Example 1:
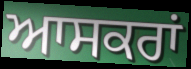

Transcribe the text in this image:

ਆਸਕਰਾਂ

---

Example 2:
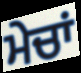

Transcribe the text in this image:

ਮੇਚਾਂ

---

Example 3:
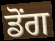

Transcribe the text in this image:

ਡੋਂਗ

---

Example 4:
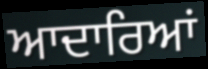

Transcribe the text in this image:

ਆਦਾਰਿਆਂ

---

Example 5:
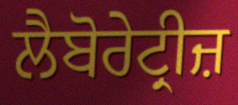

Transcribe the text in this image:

ਲੈਬੋਰੇਟ੍ਰੀਜ਼